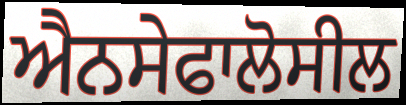
ਐਨਸੇਫਾਲੋਸੀਲ